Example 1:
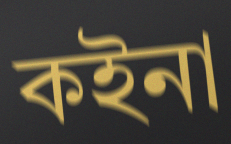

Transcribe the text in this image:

কইনা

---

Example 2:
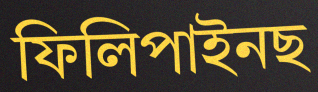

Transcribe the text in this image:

ফিলিপাইনছ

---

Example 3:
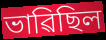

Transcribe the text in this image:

ভাৱিছিল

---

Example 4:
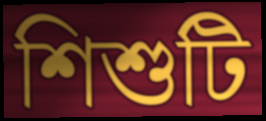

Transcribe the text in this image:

শিশুটি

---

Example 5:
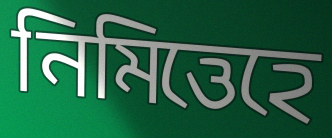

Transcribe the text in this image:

নিমিত্তেহে